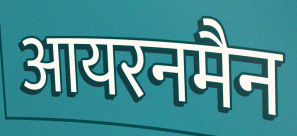
आयरनमैन